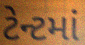
ટેન્ટમાં